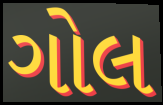
ગોલ